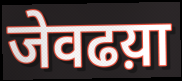
जेवढय़ा